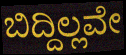
ಬಿದ್ದಿಲ್ಲವೇ